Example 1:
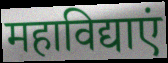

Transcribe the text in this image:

महाविद्याएं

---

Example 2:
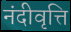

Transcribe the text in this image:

नंदीवृत्ति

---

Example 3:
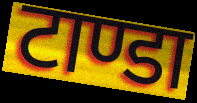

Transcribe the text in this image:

टाण्डा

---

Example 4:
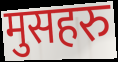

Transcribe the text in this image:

मुसहरु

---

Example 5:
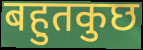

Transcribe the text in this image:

बहुतकुछ